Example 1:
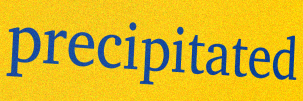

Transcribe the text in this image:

precipitated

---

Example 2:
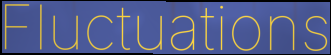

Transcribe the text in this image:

Fluctuations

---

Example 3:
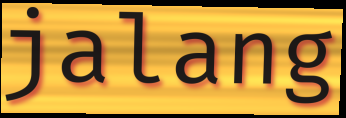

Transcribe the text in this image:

jalang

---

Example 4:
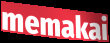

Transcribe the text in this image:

memakai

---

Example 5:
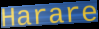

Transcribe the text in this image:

Harare